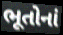
ભૂતોનાં